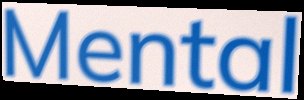
Mental